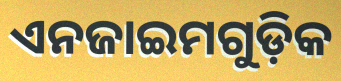
ଏନଜାଇମଗୁଡ଼ିକ